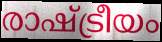
രാഷ്ട്രീയം